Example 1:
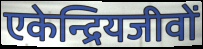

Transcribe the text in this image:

एकेन्द्रियजीवों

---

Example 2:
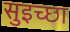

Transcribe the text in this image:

सुइच्छा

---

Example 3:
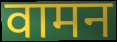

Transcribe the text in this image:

वामन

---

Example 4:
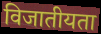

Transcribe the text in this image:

विजातीयता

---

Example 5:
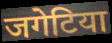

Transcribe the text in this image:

जगेटिया